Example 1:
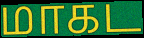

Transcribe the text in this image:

மாகட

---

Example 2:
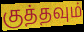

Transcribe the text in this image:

குத்தவும்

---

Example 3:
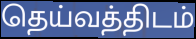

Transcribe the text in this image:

தெய்வத்திடம்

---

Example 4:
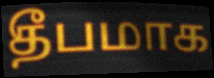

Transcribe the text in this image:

தீபமாக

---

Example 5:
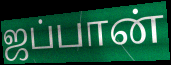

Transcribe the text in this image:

ஜப்பான்